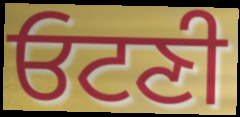
ਓਟਣੀ